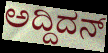
ಅದ್ದಿದನ್